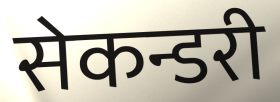
सेकन्डरी